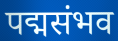
पद्मसंभव